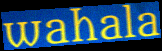
wahala